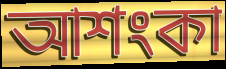
আশংকা